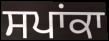
ਸਪਾਂਕਾ